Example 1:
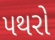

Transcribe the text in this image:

પથરો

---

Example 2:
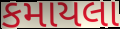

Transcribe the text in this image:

કમાયલા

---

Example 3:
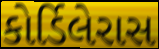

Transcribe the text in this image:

કોર્ડિલેરાસ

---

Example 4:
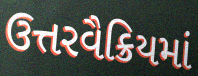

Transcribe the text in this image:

ઉત્તરવૈક્રિયમાં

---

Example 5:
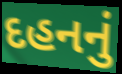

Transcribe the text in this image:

દહનનું